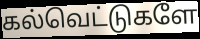
கல்வெட்டுகளே